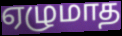
ஏழுமாத